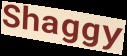
Shaggy